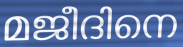
മജീദിനെ